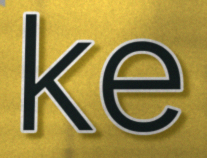
ke